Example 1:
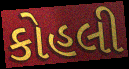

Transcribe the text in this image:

કોહલી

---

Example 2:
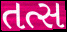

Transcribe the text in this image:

તત્સ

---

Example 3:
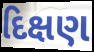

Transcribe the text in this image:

દિક્ષણ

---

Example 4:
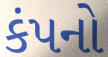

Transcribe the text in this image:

કંપનો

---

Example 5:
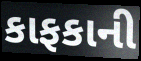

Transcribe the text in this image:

કાફકાની